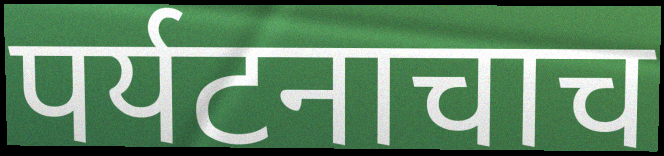
पर्यटनाचाच